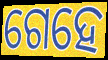
ଗେହେ